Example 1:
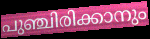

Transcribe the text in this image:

പുഞ്ചിരിക്കാനും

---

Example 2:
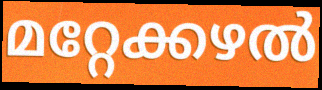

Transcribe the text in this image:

മറ്റേക്കഴൽ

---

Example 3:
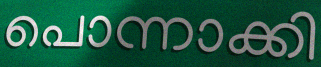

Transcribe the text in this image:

പൊന്നാക്കി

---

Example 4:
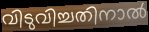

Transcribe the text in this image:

വിടുവിച്ചതിനാൽ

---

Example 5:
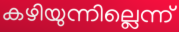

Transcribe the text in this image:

കഴിയുന്നില്ലെന്ന്